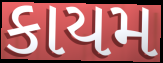
કાયમ